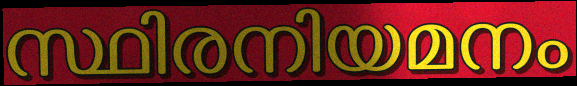
സ്ഥിരനിയമനം